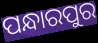
ପନ୍ଧାରପୁର